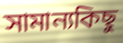
সামান্যকিছু